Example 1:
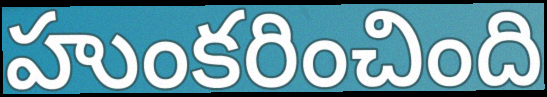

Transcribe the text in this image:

హుంకరించింది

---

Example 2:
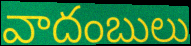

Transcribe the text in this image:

వాదంబులు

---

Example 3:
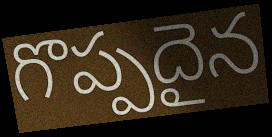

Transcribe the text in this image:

గొప్పదైన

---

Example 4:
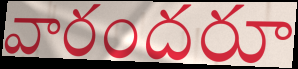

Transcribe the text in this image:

వారందరూ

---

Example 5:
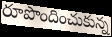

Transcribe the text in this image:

రూపొందించుకున్న